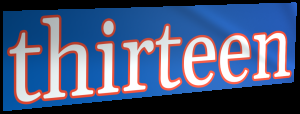
thirteen